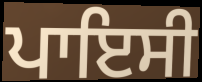
ਪਾਇਸੀ